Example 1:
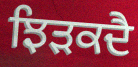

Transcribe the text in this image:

ਝਿੜਕਦੈ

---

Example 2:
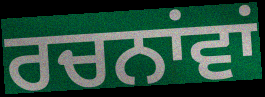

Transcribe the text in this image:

ਰਚਨਾਂਵਾਂ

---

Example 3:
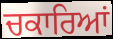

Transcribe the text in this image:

ਚਕਾਰਿਆਂ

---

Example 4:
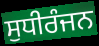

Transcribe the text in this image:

ਸੁਧੀਰੰਜਨ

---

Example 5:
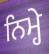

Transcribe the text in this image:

ਨਿਮ੍ਹੇ